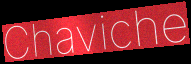
Chaviche